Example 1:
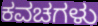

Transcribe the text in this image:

ಕವಚಗಳು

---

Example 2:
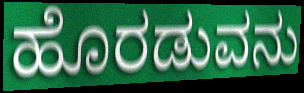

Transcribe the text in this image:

ಹೊರಡುವನು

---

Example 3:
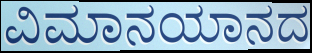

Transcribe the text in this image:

ವಿಮಾನಯಾನದ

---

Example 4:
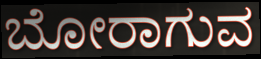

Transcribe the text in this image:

ಬೋರಾಗುವ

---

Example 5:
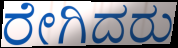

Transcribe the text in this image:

ರೇಗಿದರು